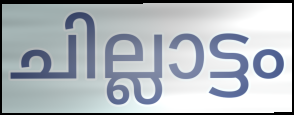
ചില്ലാട്ടം